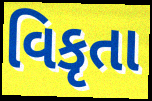
વિકૃતા